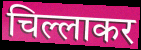
चिल्‍लाकर